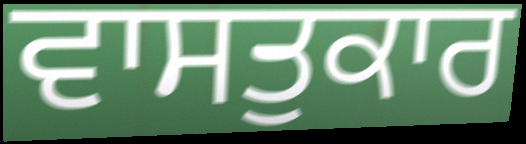
ਵਾਸਤੁਕਾਰ